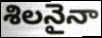
శిలనైనా